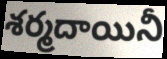
శర్మదాయినీ